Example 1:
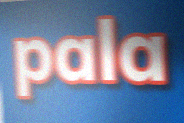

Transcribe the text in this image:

pala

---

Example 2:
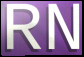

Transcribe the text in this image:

RN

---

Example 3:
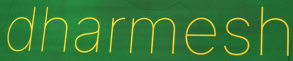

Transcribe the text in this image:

dharmesh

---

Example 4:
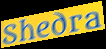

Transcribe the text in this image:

Shedra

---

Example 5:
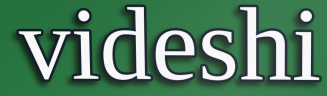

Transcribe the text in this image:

videshi